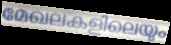
മേഖലകളിലെയും